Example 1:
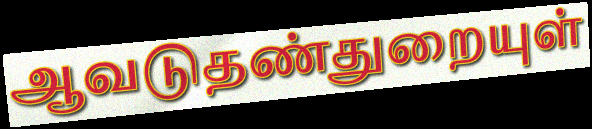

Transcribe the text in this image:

ஆவடுதண்துறையுள்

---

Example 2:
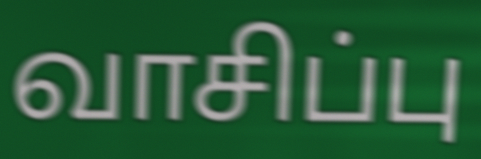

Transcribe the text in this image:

வாசிப்பு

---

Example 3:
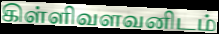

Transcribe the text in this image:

கிள்ளிவளவனிடம்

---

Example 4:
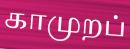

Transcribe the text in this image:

காமுறப்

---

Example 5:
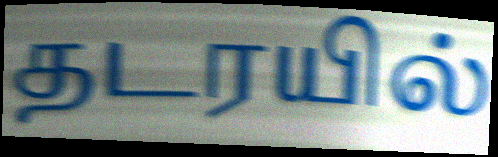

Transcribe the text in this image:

தடரயில்